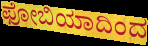
ಫೋಬಿಯಾದಿಂದ